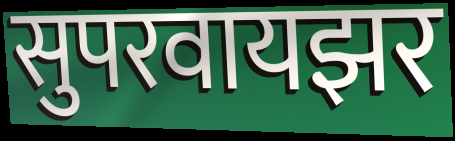
सुपरवायझर